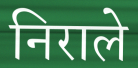
निराले